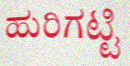
ಹುರಿಗಟ್ಟಿ